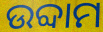
ଉବ୍ଦାମ